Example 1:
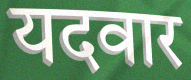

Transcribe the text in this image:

यदवार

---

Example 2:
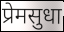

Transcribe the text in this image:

प्रेमसुधा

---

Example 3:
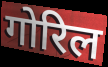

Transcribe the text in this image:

गोरिल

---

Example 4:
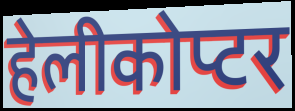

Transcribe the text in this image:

हेलीकोप्टर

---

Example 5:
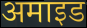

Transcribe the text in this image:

अमाइड